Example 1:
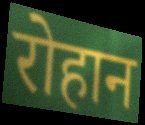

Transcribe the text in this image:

रोहान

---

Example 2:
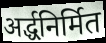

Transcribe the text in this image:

अर्द्धनिर्मित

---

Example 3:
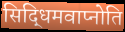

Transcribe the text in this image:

सिद्धिमवाप्नोति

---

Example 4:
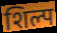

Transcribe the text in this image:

शिल्प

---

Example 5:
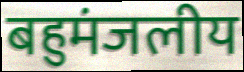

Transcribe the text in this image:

बहुमंजलीय